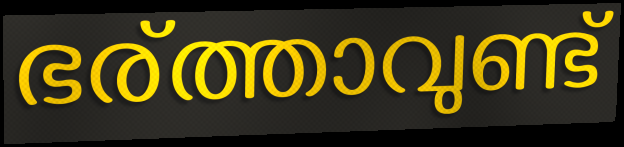
ഭര്ത്താവുണ്ട്